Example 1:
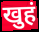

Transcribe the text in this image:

खुहं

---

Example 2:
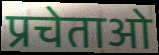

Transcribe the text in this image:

प्रचेताओ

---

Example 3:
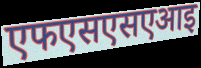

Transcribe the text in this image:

एफएसएसएआइ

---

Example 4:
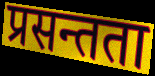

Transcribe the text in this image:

प्रसन्तता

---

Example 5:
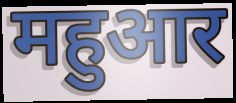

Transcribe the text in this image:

महुआर